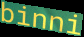
binni